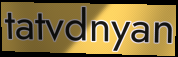
tatvdnyan